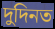
দুদিনত